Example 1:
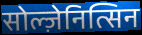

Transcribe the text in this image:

सोल्ज़ेनित्सिन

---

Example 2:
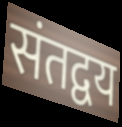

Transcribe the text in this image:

संतद्वय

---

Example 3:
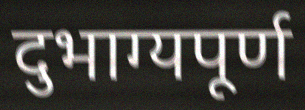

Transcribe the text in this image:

दुभाग्यपूर्ण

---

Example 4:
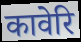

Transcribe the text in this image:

कावेरि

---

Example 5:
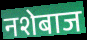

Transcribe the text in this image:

नशेबाज